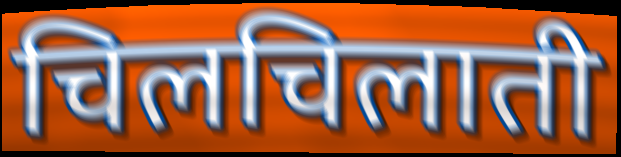
चिलचिलाती